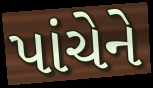
પાંચેને